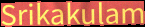
Srikakulam